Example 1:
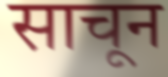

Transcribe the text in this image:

साचून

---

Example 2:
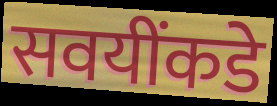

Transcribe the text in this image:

सवयींकडे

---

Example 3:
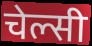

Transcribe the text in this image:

चेल्सी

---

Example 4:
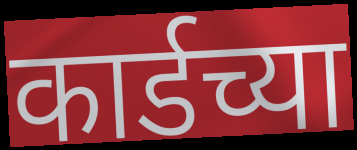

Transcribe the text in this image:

कार्डच्या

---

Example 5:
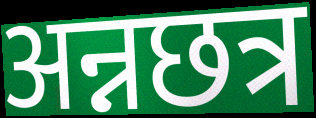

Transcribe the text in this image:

अन्नछत्र